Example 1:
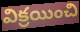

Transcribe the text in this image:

విక్రయించి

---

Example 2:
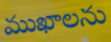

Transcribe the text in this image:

ముఖాలను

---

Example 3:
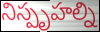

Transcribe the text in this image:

నిస్పృహల్ని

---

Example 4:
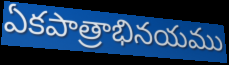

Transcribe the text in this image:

ఏకపాత్రాభినయము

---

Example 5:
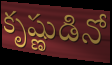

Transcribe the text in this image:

కృష్ణుడినో